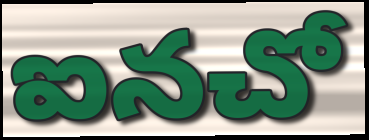
ఐనచో